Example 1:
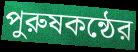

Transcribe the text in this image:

পুরুষকন্ঠের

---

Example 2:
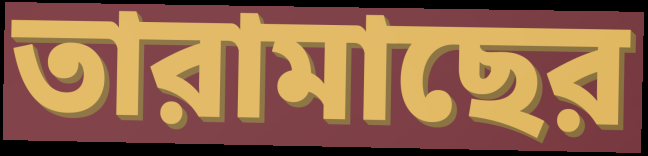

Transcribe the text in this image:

তারামাছের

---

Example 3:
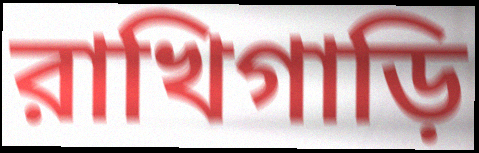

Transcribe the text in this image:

রাখিগাড়ি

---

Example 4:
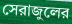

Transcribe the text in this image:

সেরাজুলের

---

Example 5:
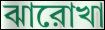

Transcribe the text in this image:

ঝারোখা